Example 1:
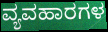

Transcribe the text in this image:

ವ್ಯವಹಾರಗಳ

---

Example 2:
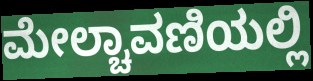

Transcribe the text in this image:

ಮೇಲ್ಚಾವಣಿಯಲ್ಲಿ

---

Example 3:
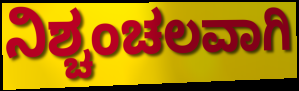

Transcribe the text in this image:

ನಿಶ್ಚಂಚಲವಾಗಿ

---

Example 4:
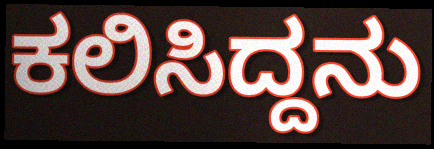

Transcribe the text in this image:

ಕಲಿಸಿದ್ದನು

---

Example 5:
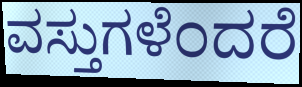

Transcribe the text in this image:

ವಸ್ತುಗಳೆಂದರೆ